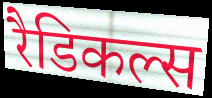
रैडिकल्स